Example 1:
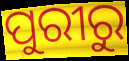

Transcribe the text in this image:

ପୁରୀରୁ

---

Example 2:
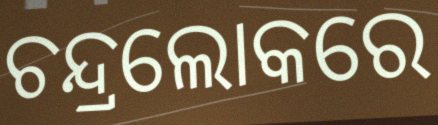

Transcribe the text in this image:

ଚନ୍ଦ୍ରଲୋକରେ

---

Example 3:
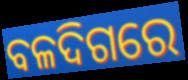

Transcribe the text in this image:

ବଳଦିଗରେ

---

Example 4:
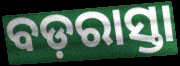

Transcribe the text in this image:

ବଡ଼ରାସ୍ତା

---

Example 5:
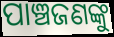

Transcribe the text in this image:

ପାଞ୍ଚଜଣଙ୍କୁ